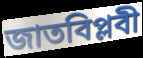
জাতবিপ্লবী